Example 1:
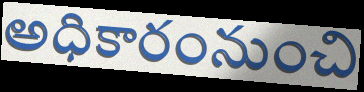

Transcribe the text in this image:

అధికారంనుంచి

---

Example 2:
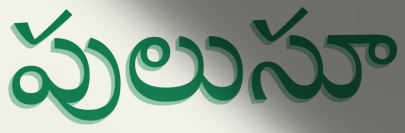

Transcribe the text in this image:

పులుసూ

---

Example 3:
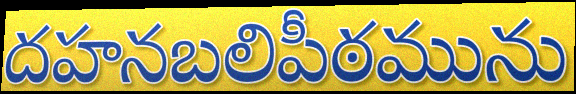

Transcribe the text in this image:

దహనబలిపీఠమును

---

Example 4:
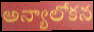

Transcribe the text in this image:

అన్యాలోకన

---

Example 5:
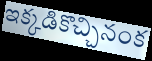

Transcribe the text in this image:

ఇక్కడికొచ్చినంక